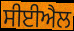
ਸੀਈਐਲ